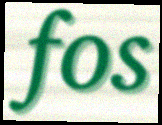
fos